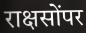
राक्षसोंपर